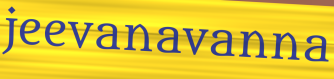
jeevanavanna